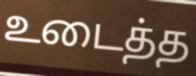
உடைத்த